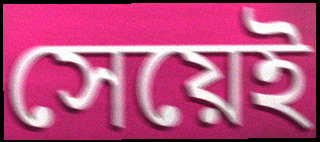
সেয়েই